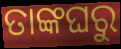
ତାଙ୍କଘରୁ